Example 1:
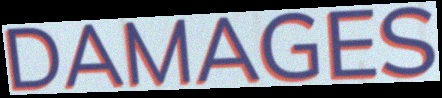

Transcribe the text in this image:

DAMAGES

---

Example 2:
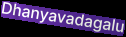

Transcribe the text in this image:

Dhanyavadagalu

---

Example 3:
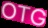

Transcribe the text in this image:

OTG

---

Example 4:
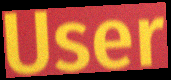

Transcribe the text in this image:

User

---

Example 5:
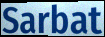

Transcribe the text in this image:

Sarbat